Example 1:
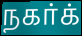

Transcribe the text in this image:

நகர்க்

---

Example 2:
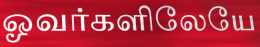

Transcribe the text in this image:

ஓவர்களிலேயே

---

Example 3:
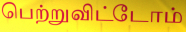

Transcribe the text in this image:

பெற்றுவிட்டோம்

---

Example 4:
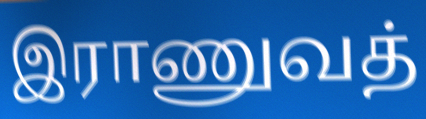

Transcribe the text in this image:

இராணுவத்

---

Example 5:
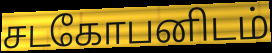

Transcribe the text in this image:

சடகோபனிடம்